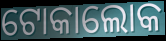
ଟୋକାଲୋକ